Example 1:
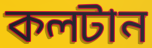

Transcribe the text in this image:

কলটান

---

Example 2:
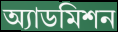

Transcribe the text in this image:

অ্যাডমিশন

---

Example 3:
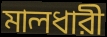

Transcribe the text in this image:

মালধারী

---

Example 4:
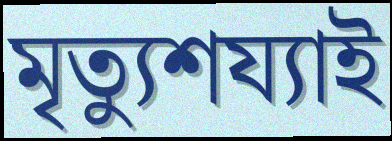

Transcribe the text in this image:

মৃত্যুশয্যাই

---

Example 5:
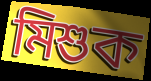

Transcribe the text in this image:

মিশুক